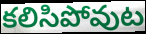
కలిసిపోవుట